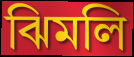
ঝিমলি